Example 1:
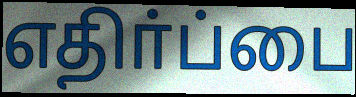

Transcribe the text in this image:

எதிர்ப்பை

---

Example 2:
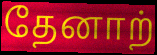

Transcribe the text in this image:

தேனாற்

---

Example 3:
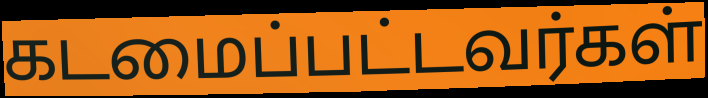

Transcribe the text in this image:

கடமைப்பட்டவர்கள்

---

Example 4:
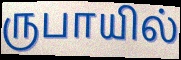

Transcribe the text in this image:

ருபாயில்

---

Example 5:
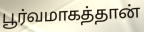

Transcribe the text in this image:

பூர்வமாகத்தான்